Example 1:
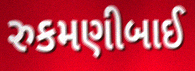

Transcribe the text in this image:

રુકમણીબાઈ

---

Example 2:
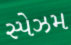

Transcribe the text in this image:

સ્પેઝમ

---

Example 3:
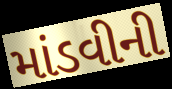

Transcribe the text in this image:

માંડવીની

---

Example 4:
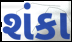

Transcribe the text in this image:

શંકા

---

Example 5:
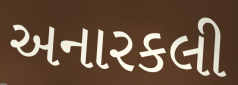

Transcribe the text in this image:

અનારકલી